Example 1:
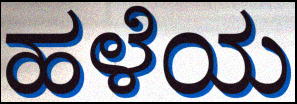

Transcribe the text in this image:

ಹಳೆಯ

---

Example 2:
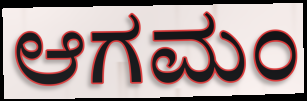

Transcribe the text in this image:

ಆಗಮಂ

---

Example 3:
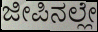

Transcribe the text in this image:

ಜೀಪಿನಲ್ಲೇ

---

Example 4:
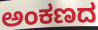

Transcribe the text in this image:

ಅಂಕಣದ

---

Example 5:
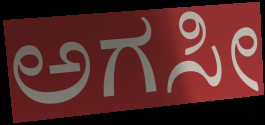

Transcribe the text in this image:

ಅಗಸೀ